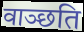
वाञ्छति